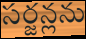
సర్జన్లను